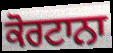
ਕੋਰਟਾਨਾ